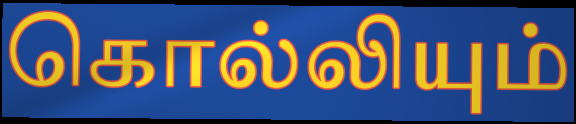
கொல்லியும்